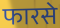
फारसे